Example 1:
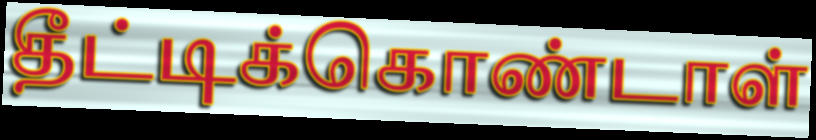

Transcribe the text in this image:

தீட்டிக்கொண்டாள்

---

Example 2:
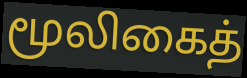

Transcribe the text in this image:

மூலிகைத்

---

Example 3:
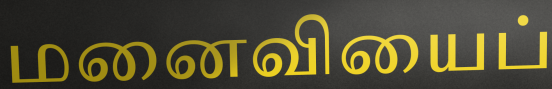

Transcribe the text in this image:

மனைவியைப்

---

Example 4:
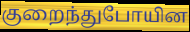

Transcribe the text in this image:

குறைந்துபோயின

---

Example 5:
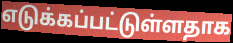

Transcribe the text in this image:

எடுக்கப்பட்டுள்ளதாக